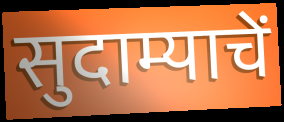
सुदाम्याचें